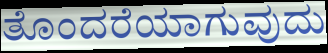
ತೊಂದರೆಯಾಗುವುದು